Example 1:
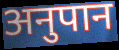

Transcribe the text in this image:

अनुपान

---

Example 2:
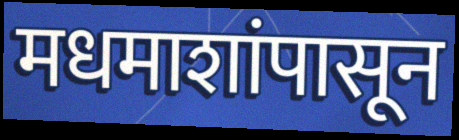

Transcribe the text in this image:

मधमाशांपासून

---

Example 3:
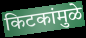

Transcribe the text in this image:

किटकांमुळे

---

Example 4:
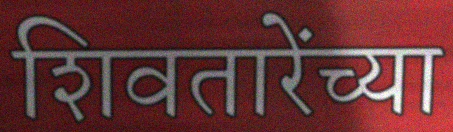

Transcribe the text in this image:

शिवतारेंच्या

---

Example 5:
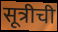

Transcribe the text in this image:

सूत्रीची